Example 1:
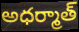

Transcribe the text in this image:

అధర్మాత్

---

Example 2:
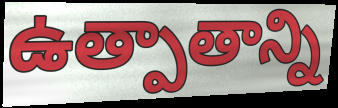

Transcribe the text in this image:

ఉత్పాతాన్ని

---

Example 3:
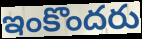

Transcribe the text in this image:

ఇంకొందరు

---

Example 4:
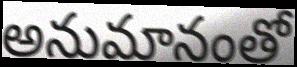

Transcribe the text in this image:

అనుమానంతో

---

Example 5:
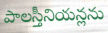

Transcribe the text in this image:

పాలస్తీనియన్లను